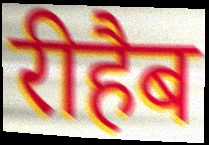
रीहैब